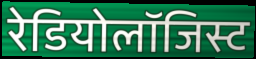
रेडियोलॉजिस्ट